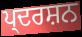
ਪ੍ਦਰਸ਼ਨ